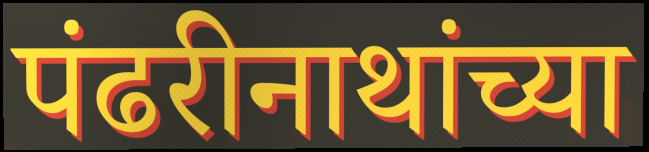
पंढरीनाथांच्या